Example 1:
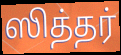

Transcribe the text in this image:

ஸித்தர்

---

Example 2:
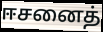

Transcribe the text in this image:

ஈசனைத்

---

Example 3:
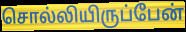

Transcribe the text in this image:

சொல்லியிருப்பேன்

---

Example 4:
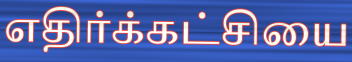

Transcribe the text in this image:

எதிர்க்கட்சியை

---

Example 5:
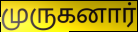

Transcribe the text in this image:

முருகனார்